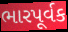
ભારપૂર્વક